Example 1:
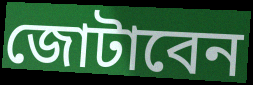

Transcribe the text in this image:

জোটাবেন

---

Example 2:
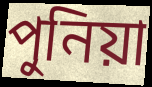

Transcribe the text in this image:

পুনিয়া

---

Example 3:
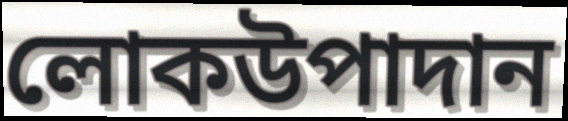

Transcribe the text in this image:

লোকউপাদান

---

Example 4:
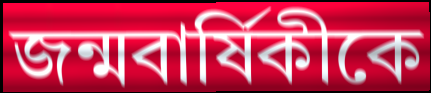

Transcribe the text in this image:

জন্মবার্ষিকীকে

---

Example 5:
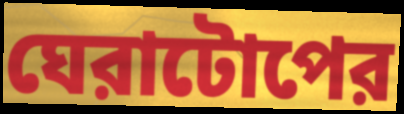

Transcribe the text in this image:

ঘেরাটোপের